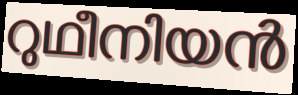
റുഥീനിയൻ